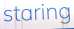
staring